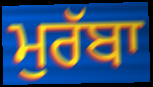
ਮੁਰੱਬਾ